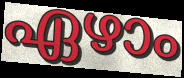
ഏഴാം